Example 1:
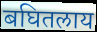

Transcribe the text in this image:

बघितलाय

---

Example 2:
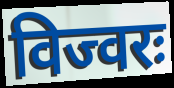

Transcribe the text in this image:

विज्वरः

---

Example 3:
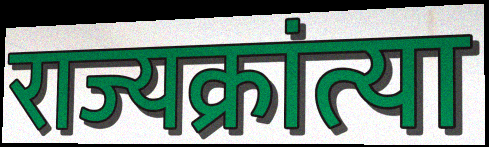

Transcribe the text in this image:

राज्यक्रांत्या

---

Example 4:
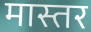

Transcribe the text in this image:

मास्तर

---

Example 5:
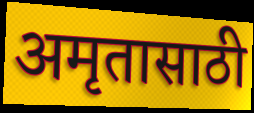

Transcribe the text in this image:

अमृतासाठी